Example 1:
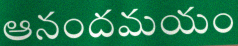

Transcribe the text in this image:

ఆనందమయం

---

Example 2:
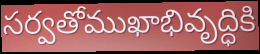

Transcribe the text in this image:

సర్వతోముఖాభివృద్ధికి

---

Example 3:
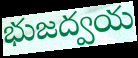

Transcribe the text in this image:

భుజద్వయ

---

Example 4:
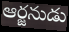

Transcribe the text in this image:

ఆర్జనుడు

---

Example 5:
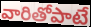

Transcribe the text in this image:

వారితోపాటే